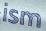
ism